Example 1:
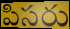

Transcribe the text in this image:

పిసరు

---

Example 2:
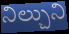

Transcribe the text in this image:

నిల్చుని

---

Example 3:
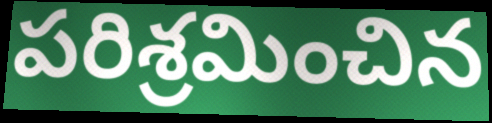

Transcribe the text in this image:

పరిశ్రమించిన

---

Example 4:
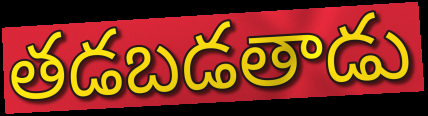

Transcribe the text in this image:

తడబడతాడు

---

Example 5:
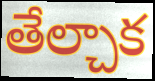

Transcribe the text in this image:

తేల్చాక